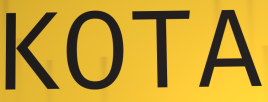
KOTA